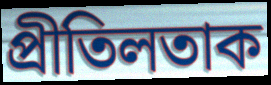
প্ৰীতিলতাক